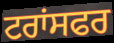
ਟਰਾਂਸਫਰ